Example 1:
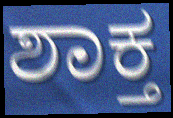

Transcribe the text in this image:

ಶಾಕ್ತ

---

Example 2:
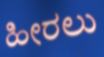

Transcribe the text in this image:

ಹೀರಲು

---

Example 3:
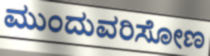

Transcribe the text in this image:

ಮುಂದುವರಿಸೋಣ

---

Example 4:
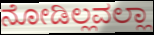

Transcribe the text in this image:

ನೋಡಿಲ್ಲವಲ್ಲಾ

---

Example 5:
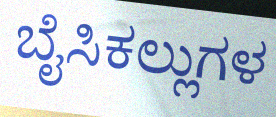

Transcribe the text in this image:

ಬೈಸಿಕಲ್ಲುಗಳ